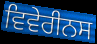
ਵਿਵੇਰੀਨਸ